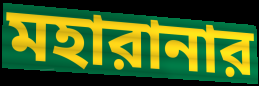
মহারানার